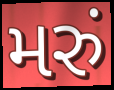
મરું